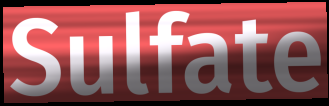
Sulfate